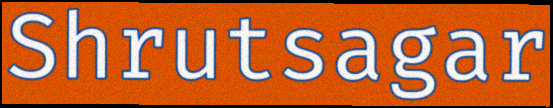
Shrutsagar